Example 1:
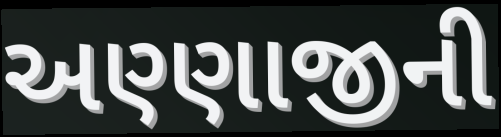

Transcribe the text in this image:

અણ્ણાજીની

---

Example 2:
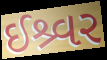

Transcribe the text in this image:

ઈશ્ર્વર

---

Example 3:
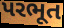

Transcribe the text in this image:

પરભૂત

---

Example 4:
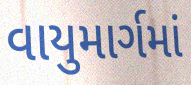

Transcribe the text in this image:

વાયુમાર્ગમાં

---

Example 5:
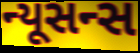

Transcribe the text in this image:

ન્યૂસન્સ